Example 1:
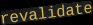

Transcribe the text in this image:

revalidate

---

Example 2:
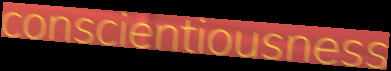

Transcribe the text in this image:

conscientiousness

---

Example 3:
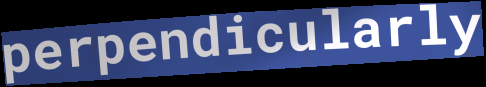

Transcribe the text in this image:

perpendicularly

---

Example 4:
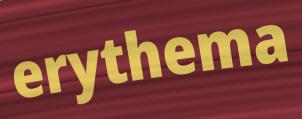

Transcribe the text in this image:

erythema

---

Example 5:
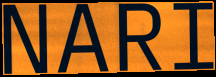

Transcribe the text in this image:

NARI